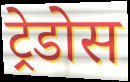
ट्रेडोस